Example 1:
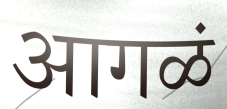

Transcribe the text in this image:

आगळं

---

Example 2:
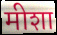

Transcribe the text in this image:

मीशा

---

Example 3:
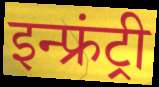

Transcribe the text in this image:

इन्फ्रंट्री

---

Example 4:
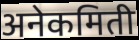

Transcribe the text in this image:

अनेकमिती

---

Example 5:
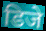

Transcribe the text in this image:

डिजे